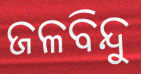
ଜଳବିନ୍ଦୁ